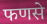
फणसे